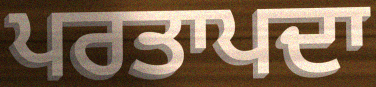
ਪਰਤਾਪਦਾ